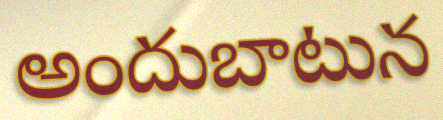
అందుబాటున